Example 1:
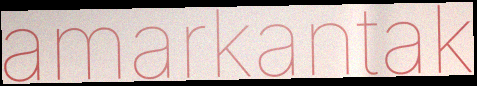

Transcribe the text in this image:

amarkantak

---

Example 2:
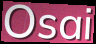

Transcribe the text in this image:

Osai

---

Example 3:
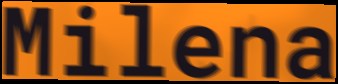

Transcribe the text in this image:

Milena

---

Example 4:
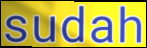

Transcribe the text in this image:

sudah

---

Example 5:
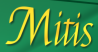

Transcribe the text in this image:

Mitis